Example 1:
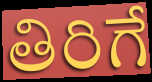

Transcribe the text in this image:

తిరిగే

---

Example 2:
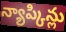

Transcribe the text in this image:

న్యాప్కిన్లు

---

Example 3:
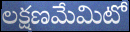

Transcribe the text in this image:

లక్షణమేమిటో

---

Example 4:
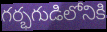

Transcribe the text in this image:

గర్భగుడిలోనికి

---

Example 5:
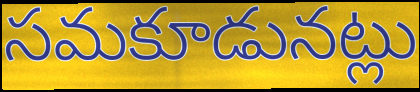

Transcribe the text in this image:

సమకూడునట్లు